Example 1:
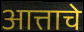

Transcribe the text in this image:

आत्ताचे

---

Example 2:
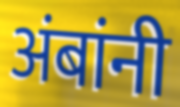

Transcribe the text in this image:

अंबांनी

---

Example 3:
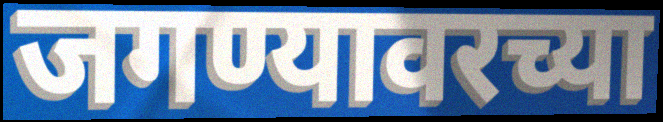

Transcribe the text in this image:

जगण्यावरच्या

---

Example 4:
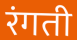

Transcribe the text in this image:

रंगती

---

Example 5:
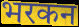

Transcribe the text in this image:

भरकन